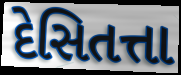
દેસિતત્તા